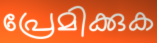
പ്രേമിക്കുക